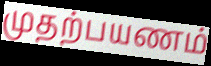
முதற்பயணம்